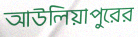
আউলিয়াপুরের